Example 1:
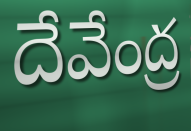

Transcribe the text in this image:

దేవేంద్ర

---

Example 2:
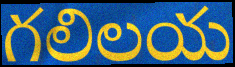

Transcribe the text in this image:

గలిలయ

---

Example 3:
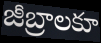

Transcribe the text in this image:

జీబ్రాలకూ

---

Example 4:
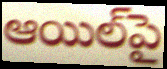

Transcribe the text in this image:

ఆయిల్‌పై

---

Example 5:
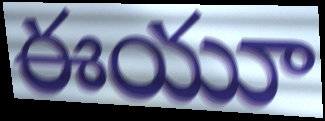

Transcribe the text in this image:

ఈయూ